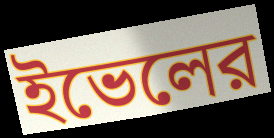
ইভেলের